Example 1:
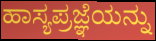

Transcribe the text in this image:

ಹಾಸ್ಯಪ್ರಜ್ಞೆಯನ್ನು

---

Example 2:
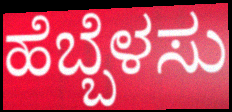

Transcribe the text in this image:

ಹೆಬ್ಬೆಳಸು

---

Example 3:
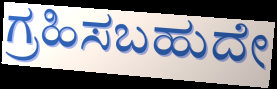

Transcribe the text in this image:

ಗ್ರಹಿಸಬಹುದೇ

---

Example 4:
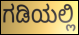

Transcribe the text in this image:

ಗಡಿಯಲ್ಲಿ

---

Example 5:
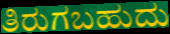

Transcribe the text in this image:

ತಿರುಗಬಹುದು